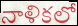
నాళికలో